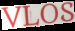
VLOS